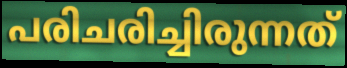
പരിചരിച്ചിരുന്നത്